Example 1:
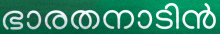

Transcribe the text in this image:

ഭാരതനാടിൻ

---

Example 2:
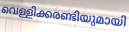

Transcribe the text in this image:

വെള്ളിക്കരണ്ടിയുമായി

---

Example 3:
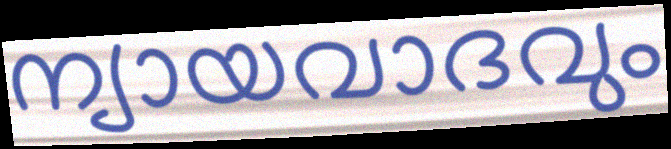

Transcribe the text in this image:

ന്യായവാദവും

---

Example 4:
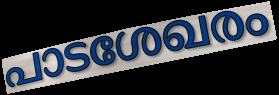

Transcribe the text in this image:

പാടശേഖരം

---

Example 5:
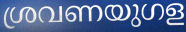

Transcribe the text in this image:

ശ്രവണയുഗള